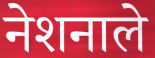
नेशनाले